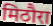
मिठौरा